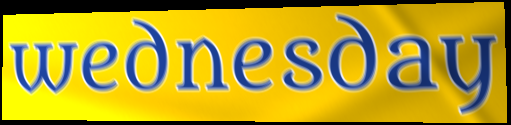
wednesday